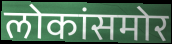
लोकांसमोर